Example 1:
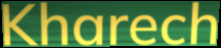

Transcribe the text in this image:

Kharech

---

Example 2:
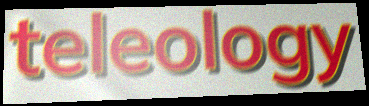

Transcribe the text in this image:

teleology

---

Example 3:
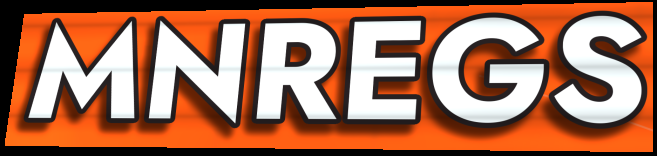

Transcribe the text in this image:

MNREGS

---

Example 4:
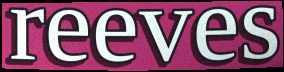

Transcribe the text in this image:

reeves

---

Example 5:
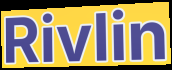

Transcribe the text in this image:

Rivlin